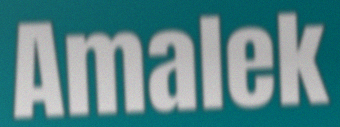
Amalek